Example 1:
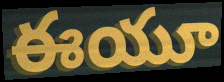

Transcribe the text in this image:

ఈయూ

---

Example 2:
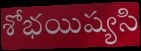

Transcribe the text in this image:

శోభయిష్యసి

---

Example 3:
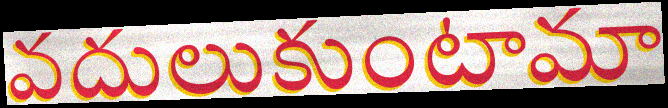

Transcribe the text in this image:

వదులుకుంటామా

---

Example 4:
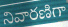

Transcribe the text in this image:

నివారణిగా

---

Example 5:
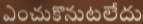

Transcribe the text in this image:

ఎంచుకొనుటలేదు